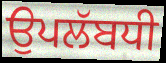
ਉਪਲੱਬਧੀ